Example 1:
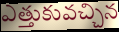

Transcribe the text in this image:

ఎత్తుకువచ్చిన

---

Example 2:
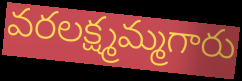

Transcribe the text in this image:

వరలక్ష్మమ్మగారు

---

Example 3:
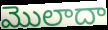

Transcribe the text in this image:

మొలాదా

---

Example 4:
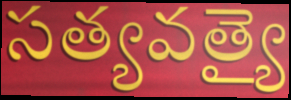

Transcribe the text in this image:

సత్యవత్యై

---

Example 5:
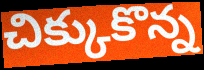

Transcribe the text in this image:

చిక్కుకొన్న